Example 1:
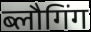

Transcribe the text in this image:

ब्लौगिंग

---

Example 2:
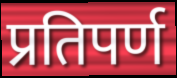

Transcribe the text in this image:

प्रतिपर्ण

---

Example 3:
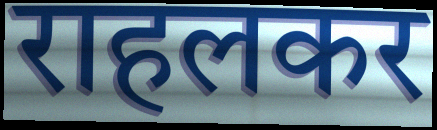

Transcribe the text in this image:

राहलकर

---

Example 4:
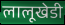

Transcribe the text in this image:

लालूखेडी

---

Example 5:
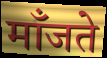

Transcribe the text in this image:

माँजते